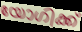
യോഗിക്ക്